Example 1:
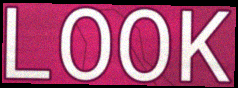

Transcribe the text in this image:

LOOK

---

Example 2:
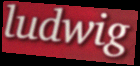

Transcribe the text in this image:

ludwig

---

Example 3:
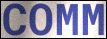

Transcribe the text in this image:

COMM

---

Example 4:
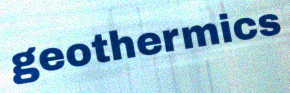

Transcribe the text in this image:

geothermics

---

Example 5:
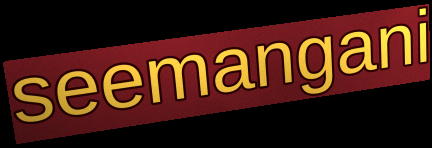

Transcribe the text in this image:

seemangani